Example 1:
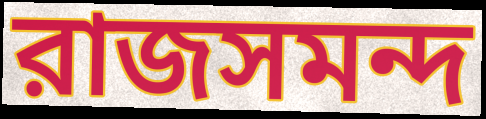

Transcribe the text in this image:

রাজসমন্দ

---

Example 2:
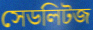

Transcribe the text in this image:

সেডলিটজ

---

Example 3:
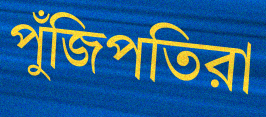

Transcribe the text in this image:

পুঁজিপতিরা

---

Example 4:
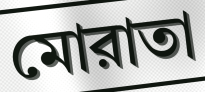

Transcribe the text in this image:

মোরাতা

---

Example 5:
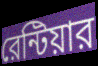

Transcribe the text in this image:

রেন্টিয়ার